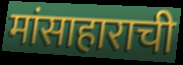
मांसाहाराची